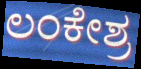
ಲಂಕೇಶ್ರ